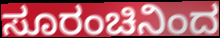
ಸೂರಂಚಿನಿಂದ